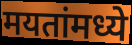
मयतांमध्ये